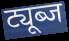
ट्यूब्ज